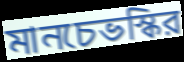
মানচেভস্কির